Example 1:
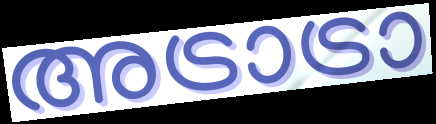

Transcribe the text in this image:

അട്രാട്രാ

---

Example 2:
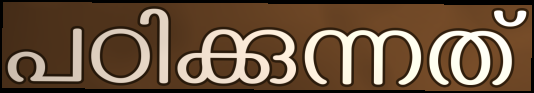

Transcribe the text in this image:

പഠിക്കുന്നത്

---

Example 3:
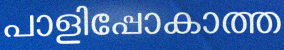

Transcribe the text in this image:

പാളിപ്പോകാത്ത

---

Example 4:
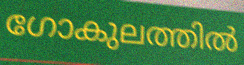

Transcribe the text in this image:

ഗോകുലത്തിൽ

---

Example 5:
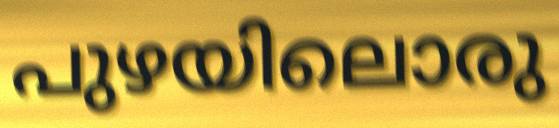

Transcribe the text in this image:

പുഴയിലൊരു